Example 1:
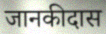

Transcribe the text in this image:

जानकीदास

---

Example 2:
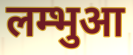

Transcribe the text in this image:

लम्भुआ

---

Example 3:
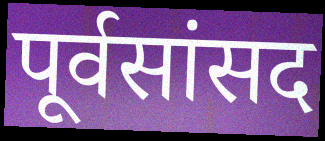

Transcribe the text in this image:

पूर्वसांसद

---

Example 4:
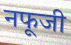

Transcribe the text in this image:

नफूजी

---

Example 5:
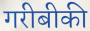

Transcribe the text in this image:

गरीबीकी